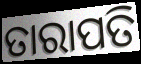
ତାରାପତି